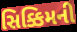
સિક્કિમની